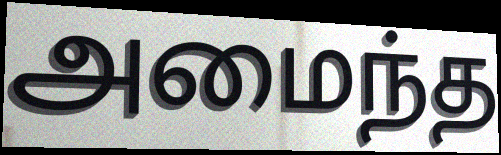
அமைந்த